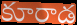
కూరాడ